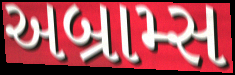
અબ્રામ્સ